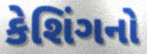
કેશિંગનો